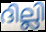
ദില്ലി